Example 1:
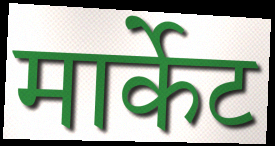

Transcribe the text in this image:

मार्केट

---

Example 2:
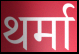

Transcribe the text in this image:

थर्मा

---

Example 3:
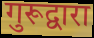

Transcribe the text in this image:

गुरूद्वारा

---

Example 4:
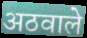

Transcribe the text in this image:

अठवाले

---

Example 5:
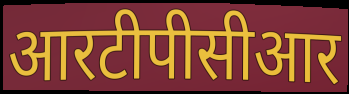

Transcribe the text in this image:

आरटीपीसीआर